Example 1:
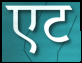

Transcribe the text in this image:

एट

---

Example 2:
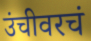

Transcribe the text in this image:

उंचीवरचं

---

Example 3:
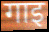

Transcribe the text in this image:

गाइ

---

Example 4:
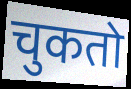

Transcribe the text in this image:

चुकतो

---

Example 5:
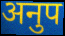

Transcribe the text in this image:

अनुप